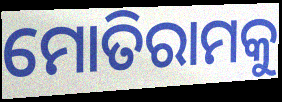
ମୋତିରାମକୁ